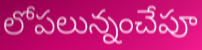
లోపలున్నంచేపూ